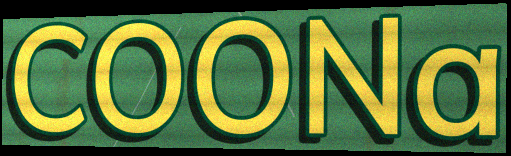
COONa